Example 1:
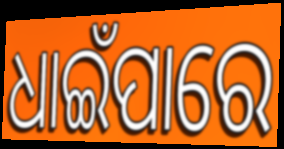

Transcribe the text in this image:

ଧାଇଁପାରେ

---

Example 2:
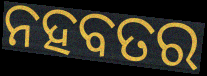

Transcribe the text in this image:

ନହବତର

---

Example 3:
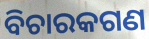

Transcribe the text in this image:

ବିଚାରକଗଣ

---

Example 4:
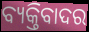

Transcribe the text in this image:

ବ୍ୟକ୍ତିବାଦର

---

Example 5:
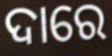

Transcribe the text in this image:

ଦାରେ